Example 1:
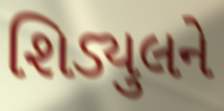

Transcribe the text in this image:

શિડ્યુલને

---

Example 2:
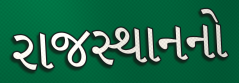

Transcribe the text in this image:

રાજસ્થાનનો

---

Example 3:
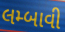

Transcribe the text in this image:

લમ્બાવી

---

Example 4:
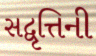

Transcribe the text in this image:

સદ્વૃત્તિની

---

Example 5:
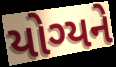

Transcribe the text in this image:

યોગ્યને